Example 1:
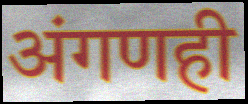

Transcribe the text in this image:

अंगणही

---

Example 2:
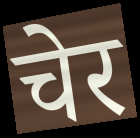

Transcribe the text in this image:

चेर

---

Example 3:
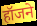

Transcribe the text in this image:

हॉजने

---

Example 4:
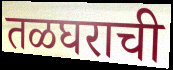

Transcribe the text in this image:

तळघराची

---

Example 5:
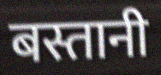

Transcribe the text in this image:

बस्तानी